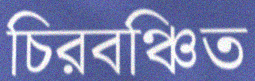
চিরবঞ্চিত